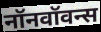
नॉनवॉवन्स